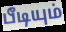
பீடியும்